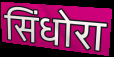
सिंधोरा